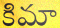
కిమా